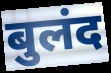
बुलंद